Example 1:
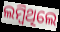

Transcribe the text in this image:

ଲମ୍ବିଥିଲେ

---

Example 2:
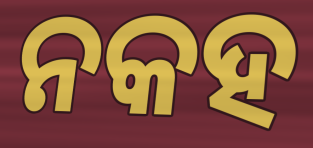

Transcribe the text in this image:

ନକହ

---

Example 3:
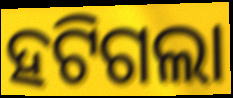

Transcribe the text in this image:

ହଟିଗଲା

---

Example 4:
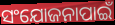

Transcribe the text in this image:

ସଂଯୋଜନାପାଇଁ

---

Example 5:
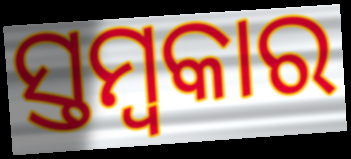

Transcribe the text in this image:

ସ୍ତମ୍ବକାର